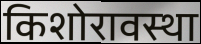
किशोरावस्था